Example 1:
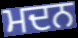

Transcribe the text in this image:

ਮਦਨ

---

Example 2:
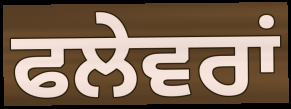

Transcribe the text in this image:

ਫਲੇਵਰਾਂ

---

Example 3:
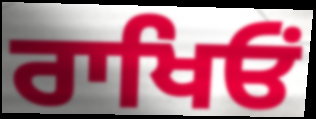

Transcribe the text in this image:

ਰਾਖਿਓਂ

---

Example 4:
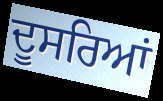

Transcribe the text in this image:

ਦੂਸਰਿਆਂ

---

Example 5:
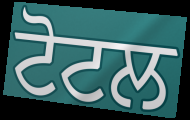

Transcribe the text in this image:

ਟੋਟਲ